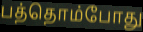
பத்தொம்போது